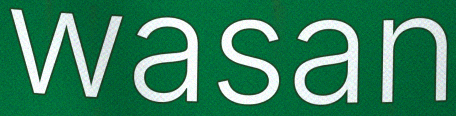
wasan